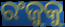
ରଂଜୁକୁ